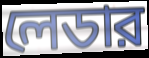
লেডার